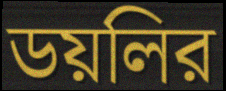
ডয়লির